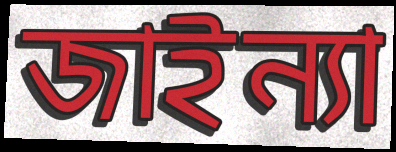
জাইন্যা